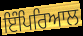
ਇੰਪਿਰਿਆਲ